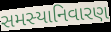
સમસ્યાનિવારણ